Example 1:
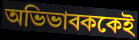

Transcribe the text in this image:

অভিভাবককেই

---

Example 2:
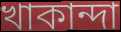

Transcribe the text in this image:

খাকান্দা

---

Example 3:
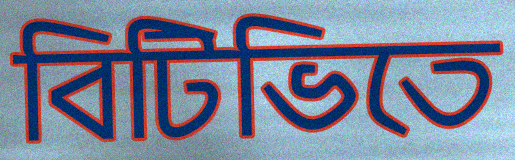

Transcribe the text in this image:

বিটিভিতে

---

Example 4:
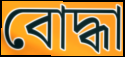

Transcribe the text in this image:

বোদ্ধা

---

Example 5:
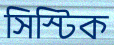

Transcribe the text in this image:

সিস্টিক